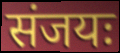
संजयः